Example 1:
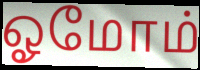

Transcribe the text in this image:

ஓமோம்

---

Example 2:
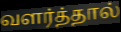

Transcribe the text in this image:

வளர்த்தால்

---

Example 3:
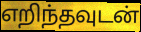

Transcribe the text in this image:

எறிந்தவுடன்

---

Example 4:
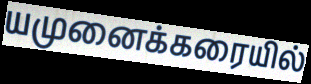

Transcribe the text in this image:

யமுனைக்கரையில்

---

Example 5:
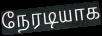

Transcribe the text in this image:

நேரடியாக